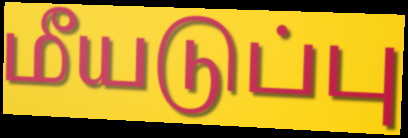
மீயடுப்பு